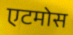
एटमोस